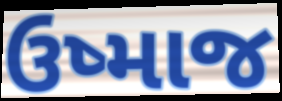
ઉષ્માજ